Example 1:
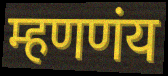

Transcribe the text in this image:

म्हणणंय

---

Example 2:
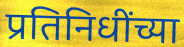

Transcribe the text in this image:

प्रतिनिधींच्या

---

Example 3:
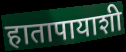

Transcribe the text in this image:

हातापायाशी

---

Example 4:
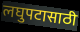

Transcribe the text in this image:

लघुपटासाठी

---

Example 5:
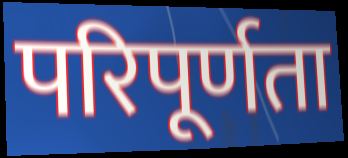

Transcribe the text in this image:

परिपूर्णता